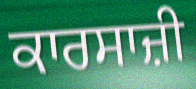
ਕਾਰਸਾਜ਼ੀ